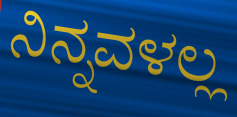
ನಿನ್ನವಳಲ್ಲ